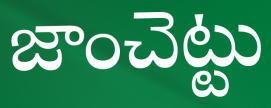
జాంచెట్టు